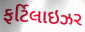
ફર્ટિલાઇઝર